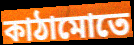
কাঠামোতে